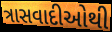
ત્રાસવાદીઓથી